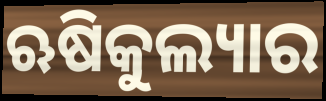
ଋଷିକୁଲ୍ୟାର